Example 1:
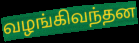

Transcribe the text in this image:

வழங்கிவந்தன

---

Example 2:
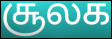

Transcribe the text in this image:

சூலக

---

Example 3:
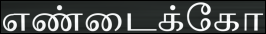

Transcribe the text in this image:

எண்டைக்கோ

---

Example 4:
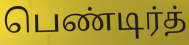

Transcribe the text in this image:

பெண்டிர்த்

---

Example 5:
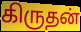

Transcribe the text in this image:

கிருதன்